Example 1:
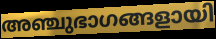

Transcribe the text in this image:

അഞ്ചുഭാഗങ്ങളായി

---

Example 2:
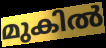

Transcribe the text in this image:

മുകിൽ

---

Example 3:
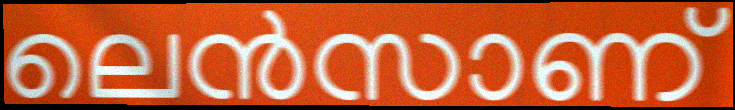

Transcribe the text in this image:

ലെൻസാണ്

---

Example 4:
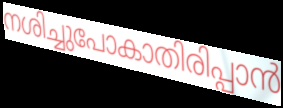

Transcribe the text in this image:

നശിച്ചുപോകാതിരിപ്പാൻ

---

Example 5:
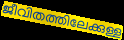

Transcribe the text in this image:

ജീവിതത്തിലേക്കുള്ള